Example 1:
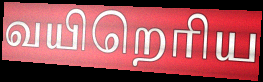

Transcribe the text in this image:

வயிறெரிய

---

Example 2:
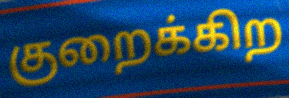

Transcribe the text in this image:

குறைக்கிற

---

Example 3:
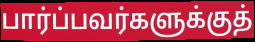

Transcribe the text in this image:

பார்ப்பவர்களுக்குத்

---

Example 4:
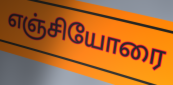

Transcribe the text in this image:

எஞ்சியோரை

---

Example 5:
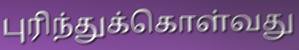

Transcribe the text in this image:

புரிந்துக்கொள்வது